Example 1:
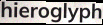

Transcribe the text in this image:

hieroglyph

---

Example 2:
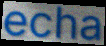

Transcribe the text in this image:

echa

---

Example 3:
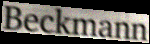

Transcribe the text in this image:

Beckmann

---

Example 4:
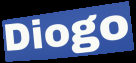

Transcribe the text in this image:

Diogo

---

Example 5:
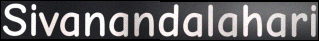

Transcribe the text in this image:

Sivanandalahari